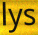
lys